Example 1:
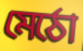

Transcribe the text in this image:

মেঠো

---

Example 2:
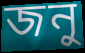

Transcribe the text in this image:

জনু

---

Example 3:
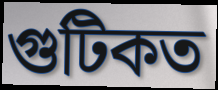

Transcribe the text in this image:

গুটিকত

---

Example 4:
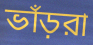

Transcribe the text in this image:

ভাঁড়রা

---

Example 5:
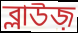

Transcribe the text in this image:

ব্লাউজ়